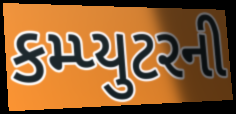
કમ્પ્યુટરની